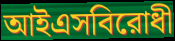
আইএসবিরোধী